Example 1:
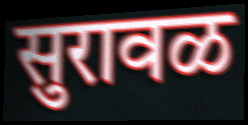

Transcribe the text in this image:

सुरावळ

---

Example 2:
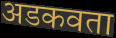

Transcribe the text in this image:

अडकवता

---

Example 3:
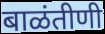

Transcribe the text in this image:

बाळंतीणी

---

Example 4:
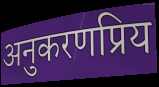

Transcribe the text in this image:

अनुकरणप्रिय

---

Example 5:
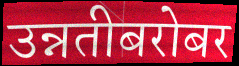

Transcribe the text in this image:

उन्नतीबरोबर